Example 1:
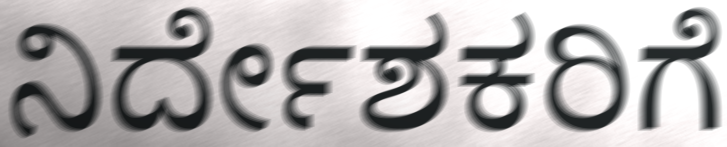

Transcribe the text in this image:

ನಿರ್ದೇಶಕರಿಗೆ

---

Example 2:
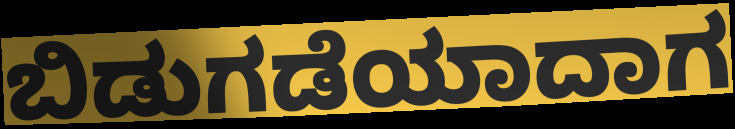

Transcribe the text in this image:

ಬಿಡುಗಡೆಯಾದಾಗ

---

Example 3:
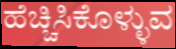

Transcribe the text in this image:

ಹೆಚ್ಚಿಸಿಕೊಳ್ಳುವ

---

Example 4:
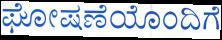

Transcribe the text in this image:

ಘೋಷಣೆಯೊಂದಿಗೆ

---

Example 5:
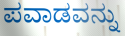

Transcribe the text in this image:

ಪವಾಡವನ್ನು